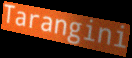
Tarangini